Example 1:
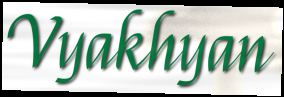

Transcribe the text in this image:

Vyakhyan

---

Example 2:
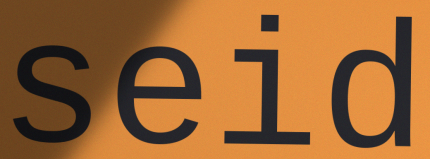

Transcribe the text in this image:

seid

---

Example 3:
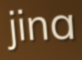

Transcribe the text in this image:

jina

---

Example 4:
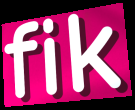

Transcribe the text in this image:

fik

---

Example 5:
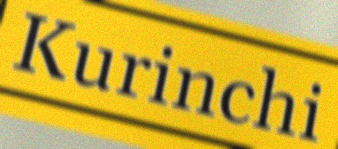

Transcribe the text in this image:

Kurinchi